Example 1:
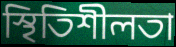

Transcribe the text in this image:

স্থিতিশীলতা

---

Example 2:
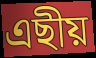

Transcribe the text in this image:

এছীয়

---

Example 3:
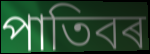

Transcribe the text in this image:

পাতিবৰ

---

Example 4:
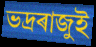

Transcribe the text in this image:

ভদ্ৰৰাজুই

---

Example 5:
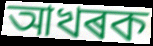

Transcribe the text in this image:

আখৰক